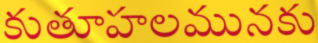
కుతూహలమునకు